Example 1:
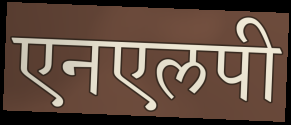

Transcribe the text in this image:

एनएलपी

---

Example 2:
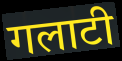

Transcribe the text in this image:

गलाटी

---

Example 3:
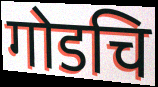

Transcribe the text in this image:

गोडचि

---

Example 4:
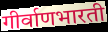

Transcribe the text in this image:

गीर्वाणभारती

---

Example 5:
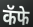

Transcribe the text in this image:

कॅफे